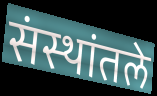
संस्थांतले